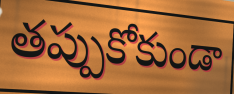
తప్పుకోకుండా